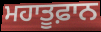
ਮਹਾਤੂਫ਼ਾਨ